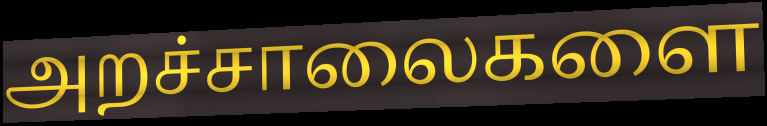
அறச்சாலைகளை